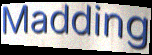
Madding